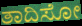
ತಾದಿಸೋ